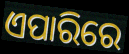
ଏପାରିରେ